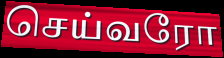
செய்வரோ